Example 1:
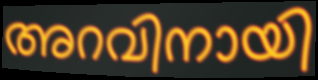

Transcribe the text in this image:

അറവിനായി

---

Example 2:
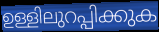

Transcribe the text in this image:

ഉള്ളിലുറപ്പിക്കുക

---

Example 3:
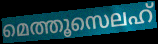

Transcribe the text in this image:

മെത്തൂസെലഹ്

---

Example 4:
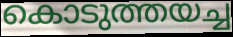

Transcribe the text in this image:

കൊടുത്തയച്ച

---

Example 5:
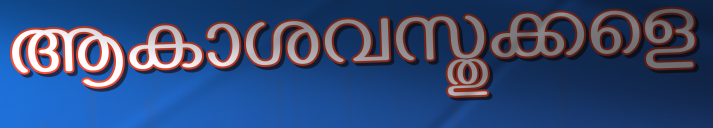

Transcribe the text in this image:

ആകാശവസ്തുക്കളെ